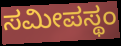
ಸಮೀಪಸ್ಥಂ